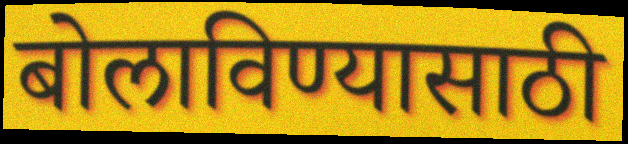
बोलाविण्यासाठी